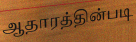
ஆதாரத்தின்படி